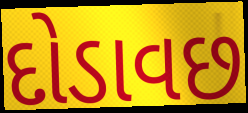
દોડાવછ